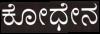
ಕೋಧೇನ